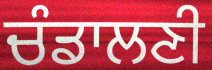
ਚੰਡਾਲਣੀ